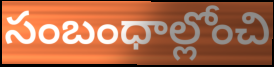
సంబంధాల్లోంచి